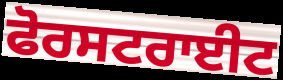
ਫੋਰਸਟਰਾਈਟ